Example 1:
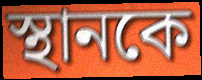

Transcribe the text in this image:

স্থানকে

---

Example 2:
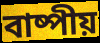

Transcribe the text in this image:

বাষ্পীয়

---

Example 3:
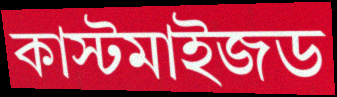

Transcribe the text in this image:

কাস্টমাইজড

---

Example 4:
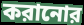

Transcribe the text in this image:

করানোর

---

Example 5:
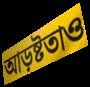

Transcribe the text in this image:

আড়ষ্টতাও